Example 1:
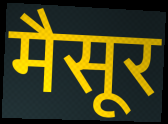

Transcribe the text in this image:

मैसूर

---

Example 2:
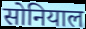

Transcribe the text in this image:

सोनियाल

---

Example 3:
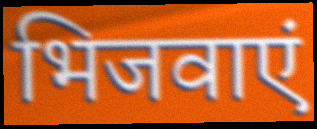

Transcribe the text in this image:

भिजवाएं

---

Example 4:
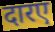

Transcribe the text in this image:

दारए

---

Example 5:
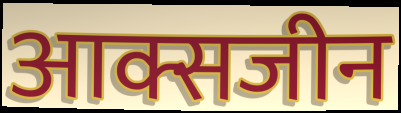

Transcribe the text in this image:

आक्सजीन